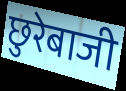
छुरेबाजी